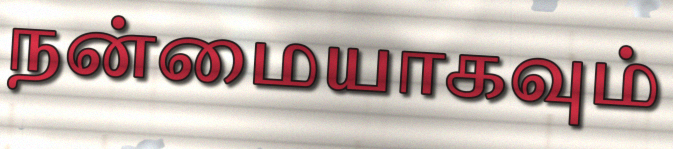
நன்மையாகவும்